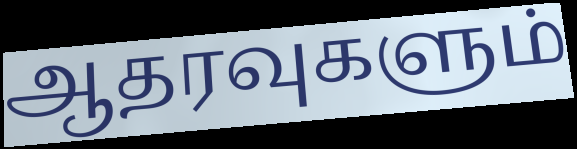
ஆதரவுகளும்